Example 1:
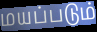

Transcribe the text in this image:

மயப்படும்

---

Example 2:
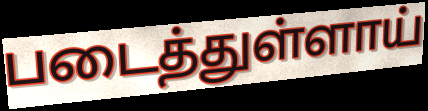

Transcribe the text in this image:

படைத்துள்ளாய்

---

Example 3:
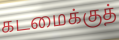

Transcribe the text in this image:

கடமைக்குத்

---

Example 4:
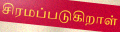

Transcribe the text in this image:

சிரமப்படுகிறாள்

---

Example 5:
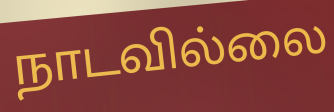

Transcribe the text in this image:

நாடவில்லை